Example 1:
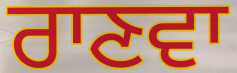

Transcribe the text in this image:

ਰਾਣਵਾ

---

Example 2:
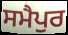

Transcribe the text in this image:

ਸਮੈਪੁਰ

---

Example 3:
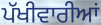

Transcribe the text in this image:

ਪੱਖੀਵਾਰੀਆਂ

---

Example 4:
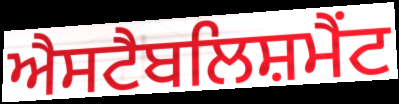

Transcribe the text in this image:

ਐਸਟੈਬਲਿਸ਼ਮੈਂਟ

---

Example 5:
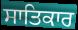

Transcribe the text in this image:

ਸਾਤਿਕਾਰ